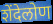
शेंदेलोण